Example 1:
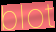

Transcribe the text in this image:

blot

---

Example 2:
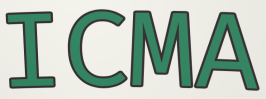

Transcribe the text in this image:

ICMA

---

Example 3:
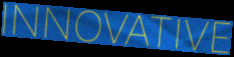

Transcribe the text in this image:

INNOVATIVE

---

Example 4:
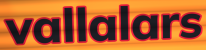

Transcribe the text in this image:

vallalars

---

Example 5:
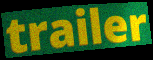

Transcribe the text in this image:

trailer